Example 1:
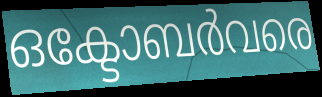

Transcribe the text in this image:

ഒക്ടോബർവരെ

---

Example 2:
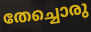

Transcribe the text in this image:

തേച്ചൊരു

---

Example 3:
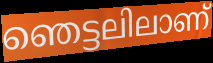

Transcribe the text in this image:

ഞെട്ടലിലാണ്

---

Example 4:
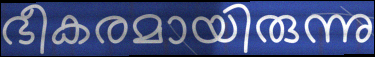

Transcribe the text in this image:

ഭീകരമായിരുന്നു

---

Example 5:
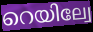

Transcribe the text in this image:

റെയില്വേ